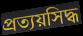
প্রত্যয়সিদ্ধ